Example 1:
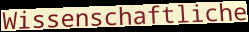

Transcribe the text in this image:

Wissenschaftliche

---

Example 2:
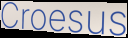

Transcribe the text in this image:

Croesus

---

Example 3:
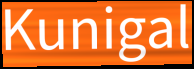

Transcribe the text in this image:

Kunigal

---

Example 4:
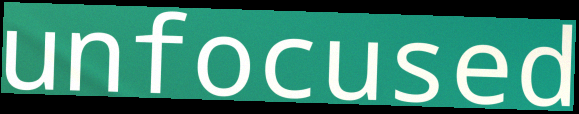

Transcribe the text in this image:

unfocused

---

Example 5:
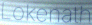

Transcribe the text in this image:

Lokenath